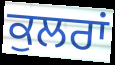
ਕੁਲਰਾਂ